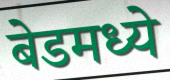
बेडमध्ये